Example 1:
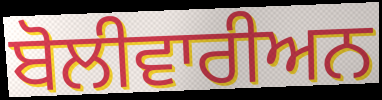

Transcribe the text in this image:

ਬੋਲੀਵਾਰੀਅਨ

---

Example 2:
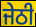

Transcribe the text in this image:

ਜੇਠੀ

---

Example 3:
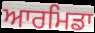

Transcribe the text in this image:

ਆਰਮਿਡਾ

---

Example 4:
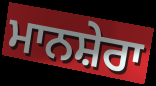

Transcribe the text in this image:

ਮਾਨਸ਼ੇਰਾ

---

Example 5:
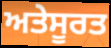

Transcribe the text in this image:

ਅਤੇਸੂਰਤ